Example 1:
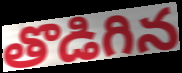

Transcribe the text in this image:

తొడిగిన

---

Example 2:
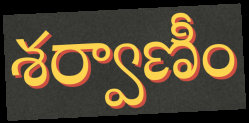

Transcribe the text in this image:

శర్వాణీం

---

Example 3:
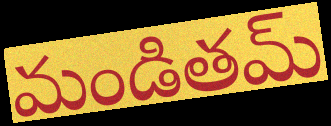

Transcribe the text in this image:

మండితమ్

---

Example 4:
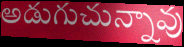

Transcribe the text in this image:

అడుగుచున్నావు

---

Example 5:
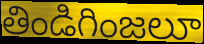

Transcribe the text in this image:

తిండిగింజలూ